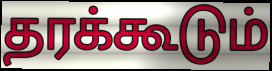
தரக்கூடும்